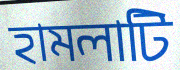
হামলাটি